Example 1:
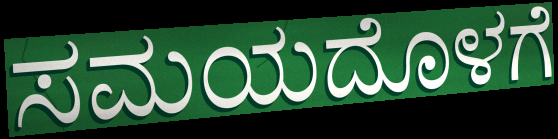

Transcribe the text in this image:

ಸಮಯದೊಳಗೆ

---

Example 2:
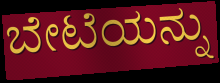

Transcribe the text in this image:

ಬೇಟೆಯನ್ನು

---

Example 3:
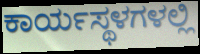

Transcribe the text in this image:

ಕಾರ್ಯಸ್ಥಳಗಳಲ್ಲಿ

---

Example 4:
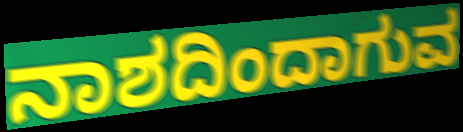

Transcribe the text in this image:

ನಾಶದಿಂದಾಗುವ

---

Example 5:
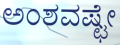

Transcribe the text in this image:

ಅಂಶವಷ್ಟೇ